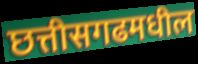
छत्तीसगढमधील